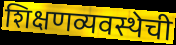
शिक्षणव्यवस्थेची